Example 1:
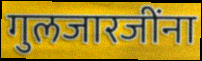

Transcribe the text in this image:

गुलजारजींना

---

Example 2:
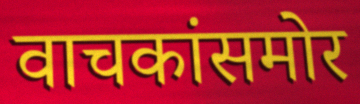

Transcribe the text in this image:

वाचकांसमोर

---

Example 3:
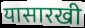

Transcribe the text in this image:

यासारखी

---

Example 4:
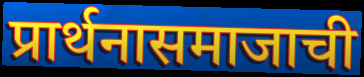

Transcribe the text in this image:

प्रार्थनासमाजाची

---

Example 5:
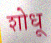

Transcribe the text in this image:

शोधू